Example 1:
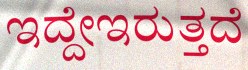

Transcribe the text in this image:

ಇದ್ದೇಇರುತ್ತದೆ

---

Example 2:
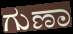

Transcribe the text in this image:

ಗುಣಾ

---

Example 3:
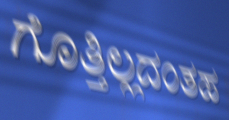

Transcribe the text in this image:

ಗೊತ್ತಿಲ್ಲದಂತಹ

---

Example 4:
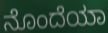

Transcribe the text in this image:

ನೊಂದೆಯಾ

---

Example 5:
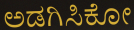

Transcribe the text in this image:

ಅಡಗಿಸಿಕೋ